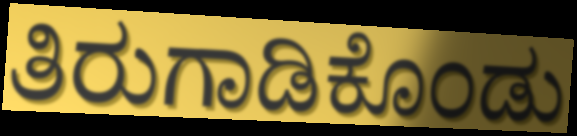
ತಿರುಗಾಡಿಕೊಂಡು